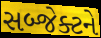
સબ્જેક્ટને